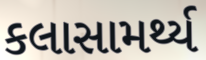
કલાસામર્થ્ય